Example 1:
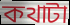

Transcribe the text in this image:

কথাটা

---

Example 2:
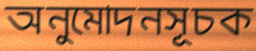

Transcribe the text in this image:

অনুমোদনসূচক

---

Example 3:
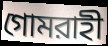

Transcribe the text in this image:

গোমরাহী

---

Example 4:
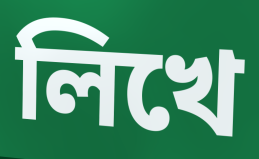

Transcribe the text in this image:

লিখে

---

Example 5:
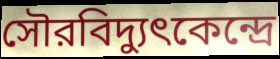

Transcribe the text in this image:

সৌরবিদ্যুৎকেন্দ্রে